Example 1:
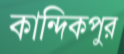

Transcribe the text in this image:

কান্দিকপুর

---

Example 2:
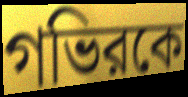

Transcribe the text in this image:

গভিরকে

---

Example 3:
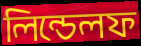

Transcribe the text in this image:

লিন্ডেলফ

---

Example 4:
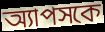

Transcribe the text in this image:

অ্যাপসকে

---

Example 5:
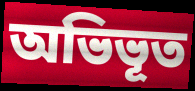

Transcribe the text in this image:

অভিভূত